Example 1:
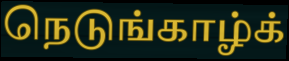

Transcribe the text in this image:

நெடுங்காழ்க்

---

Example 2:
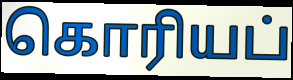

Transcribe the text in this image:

கொரியப்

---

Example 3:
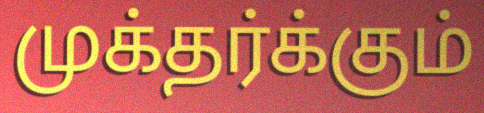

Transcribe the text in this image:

முக்தர்க்கும்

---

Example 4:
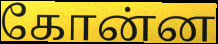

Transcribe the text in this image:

கோன்ன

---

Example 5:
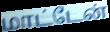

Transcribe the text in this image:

மாட்டேன்